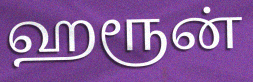
ஹரூன்